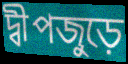
দ্বীপজুড়ে